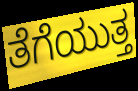
ತೆಗೆಯುತ್ತ